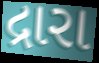
દ્રારા